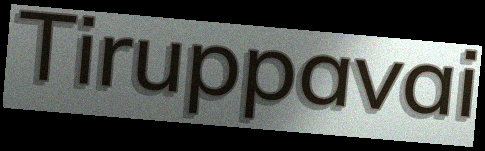
Tiruppavai